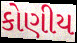
કોણીય